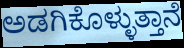
ಅಡಗಿಕೊಳ್ಳುತ್ತಾನೆ